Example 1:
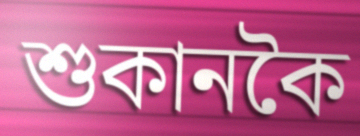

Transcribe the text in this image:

শুকানকৈ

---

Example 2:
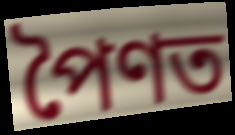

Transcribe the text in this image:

পৈণত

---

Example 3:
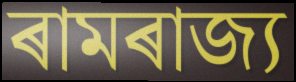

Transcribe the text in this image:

ৰামৰাজ্য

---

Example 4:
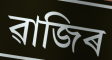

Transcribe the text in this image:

ৱাজিৰ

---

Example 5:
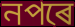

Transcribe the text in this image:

নপৰে